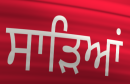
ਸਾੜਿਆਂ